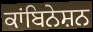
ਕਾਂਬਿਨੇਸ਼ਨ